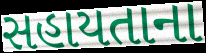
સહાયતાના